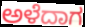
ಅಳೆದಾಗ